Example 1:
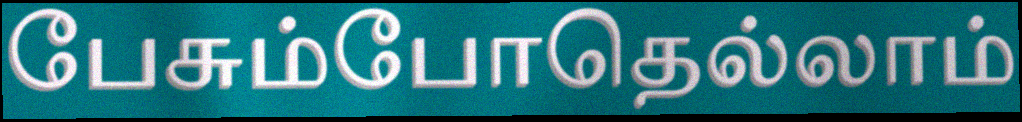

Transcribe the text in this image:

பேசும்போதெல்லாம்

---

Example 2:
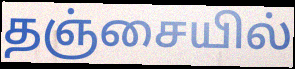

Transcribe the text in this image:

தஞ்சையில்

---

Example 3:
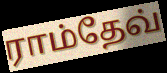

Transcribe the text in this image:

ராம்தேவ்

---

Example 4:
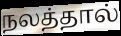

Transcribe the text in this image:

நலத்தால்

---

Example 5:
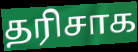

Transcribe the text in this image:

தரிசாக